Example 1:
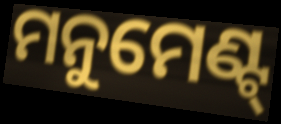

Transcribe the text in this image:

ମନୁମେଣ୍ଟ୍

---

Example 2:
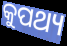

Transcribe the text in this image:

କୁପଥ୍ୟ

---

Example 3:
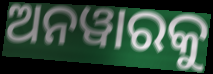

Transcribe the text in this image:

ଅନୱାରକୁ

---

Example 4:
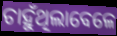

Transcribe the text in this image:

ଚାହୁଁଥିଲାବେଳେ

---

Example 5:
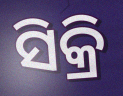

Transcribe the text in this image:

ସିକ୍ରି